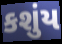
કશુંય